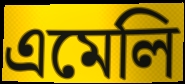
এমেলি